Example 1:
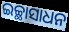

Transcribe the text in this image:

ଇଚ୍ଛାସାଧନ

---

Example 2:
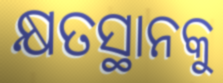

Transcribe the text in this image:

କ୍ଷତସ୍ଥାନକୁ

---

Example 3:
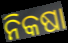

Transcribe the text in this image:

ନିକଷା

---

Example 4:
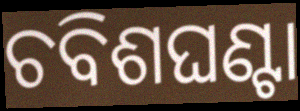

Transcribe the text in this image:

ଚବିଶଘଣ୍ଟା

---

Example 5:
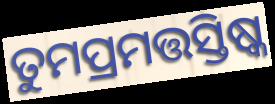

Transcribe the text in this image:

ତୁମପ୍ରମତ୍ତସ୍ତିଷ୍କ